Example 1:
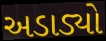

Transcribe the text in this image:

અડાડ્યો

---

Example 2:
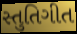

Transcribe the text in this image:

સ્તુતિગીત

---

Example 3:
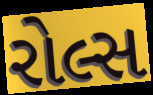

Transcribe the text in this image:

રોલ્સ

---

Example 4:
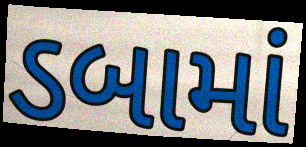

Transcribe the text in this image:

ડબામાં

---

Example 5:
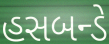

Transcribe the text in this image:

હસબન્ડે